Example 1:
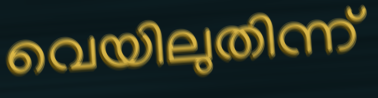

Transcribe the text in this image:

വെയിലുതിന്ന്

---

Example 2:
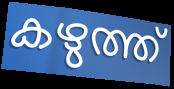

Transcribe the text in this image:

കഴുത്ത്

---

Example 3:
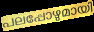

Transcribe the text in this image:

പലപ്പോഴുമായി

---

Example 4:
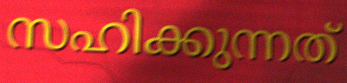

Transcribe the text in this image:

സഹിക്കുന്നത്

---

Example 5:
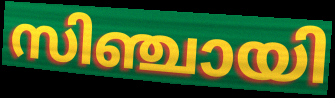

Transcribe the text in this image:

സിഞ്ചായി